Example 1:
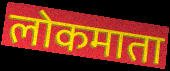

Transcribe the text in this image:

लोकमाता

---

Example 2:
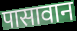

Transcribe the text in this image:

पासावान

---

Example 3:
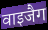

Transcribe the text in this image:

वाइजैग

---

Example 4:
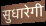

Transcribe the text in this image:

सुधारेगी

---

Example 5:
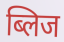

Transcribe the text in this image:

ब्लिज